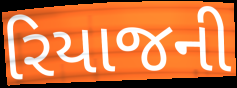
રિયાજની